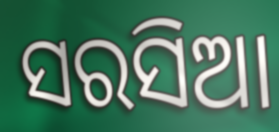
ସରସିଆ